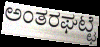
ಅಂತರಘಟ್ಟೆ